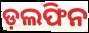
ଡ଼ଲଫିନ